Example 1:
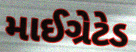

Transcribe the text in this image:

માઈગ્રેટેડ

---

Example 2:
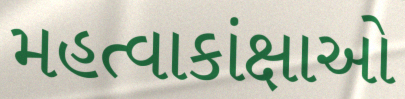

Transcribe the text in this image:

મહત્વાકાંક્ષાઓ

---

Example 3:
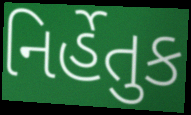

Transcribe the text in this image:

નિર્હેતુક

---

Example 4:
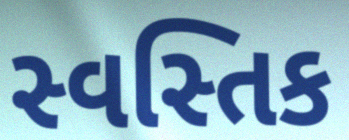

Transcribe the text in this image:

સ્વસ્તિક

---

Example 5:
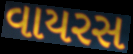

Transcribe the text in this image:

વાયરસ